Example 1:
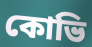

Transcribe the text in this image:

কোভি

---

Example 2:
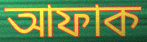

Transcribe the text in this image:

আফাক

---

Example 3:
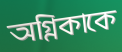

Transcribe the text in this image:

অগ্নিকাকে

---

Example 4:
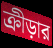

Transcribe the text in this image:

ক্রীড়ার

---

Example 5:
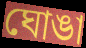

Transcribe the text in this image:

ঘোঙা